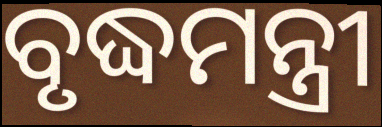
ବୃଦ୍ଧମନ୍ତ୍ରୀ